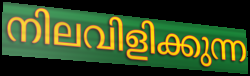
നിലവിളിക്കുന്ന